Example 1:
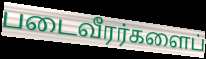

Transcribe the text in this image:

படைவீரர்களைப்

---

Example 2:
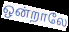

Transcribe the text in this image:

ஒன்றாலே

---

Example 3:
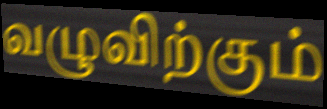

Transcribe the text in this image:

வழுவிற்கும்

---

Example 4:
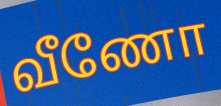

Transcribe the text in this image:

வீணோ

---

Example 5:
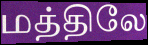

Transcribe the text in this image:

மத்திலே